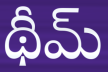
థీమ్